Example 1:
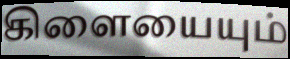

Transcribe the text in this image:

கிளையையும்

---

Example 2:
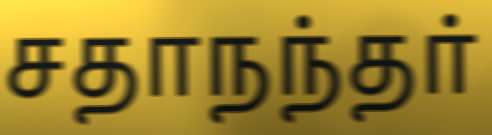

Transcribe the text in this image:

சதாநந்தர்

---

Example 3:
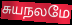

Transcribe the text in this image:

சுயநலமே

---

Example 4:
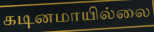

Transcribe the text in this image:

கடினமாயில்லை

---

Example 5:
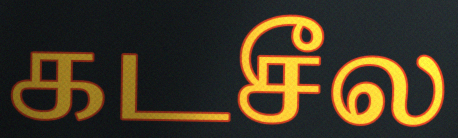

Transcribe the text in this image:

கடசீல